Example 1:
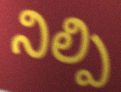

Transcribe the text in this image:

నిల్పి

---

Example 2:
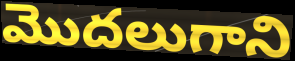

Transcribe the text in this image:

మొదలుగాని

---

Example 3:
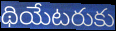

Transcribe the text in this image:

థియేటరుకు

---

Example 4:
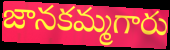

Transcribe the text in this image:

జానకమ్మగారు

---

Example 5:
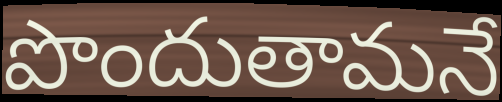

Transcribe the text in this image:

పొందుతామనే